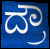
ದ್ರೌ